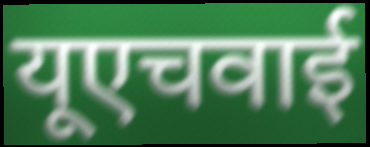
यूएचवाई